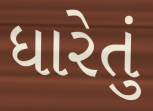
ધારેતું